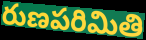
రుణపరిమితి